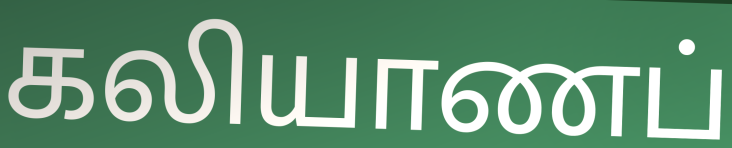
கலியாணப்